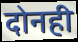
दोनही